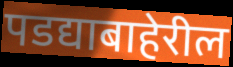
पडद्याबाहेरील